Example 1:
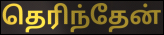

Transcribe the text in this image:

தெரிந்தேன்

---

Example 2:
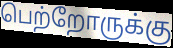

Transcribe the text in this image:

பெற்றோருக்கு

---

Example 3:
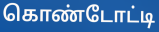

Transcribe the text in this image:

கொண்டோட்டி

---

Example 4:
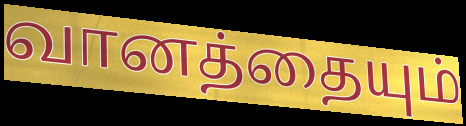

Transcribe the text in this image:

வானத்தையும்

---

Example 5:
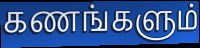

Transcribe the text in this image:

கணங்களும்